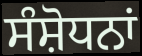
ਸੰਸ਼ੋਧਨਾਂ